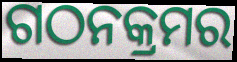
ଗଠନକ୍ରମର